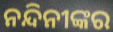
ନନ୍ଦିନୀଙ୍କର